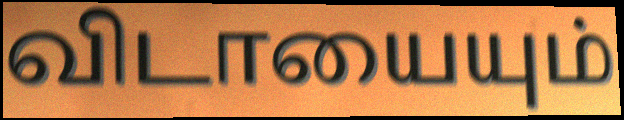
விடாயையும்